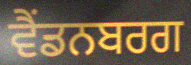
ਵੈਂਡਨਬਰਗ